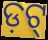
ଡ଼ଟ୍